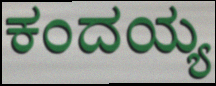
ಕಂದಯ್ಯ